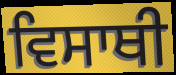
ਵਿਸਾਥੀ